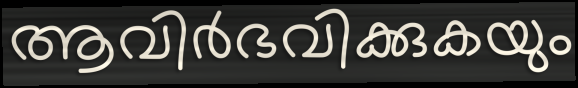
ആവിർഭവിക്കുകയും